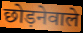
छोड़नेवाले